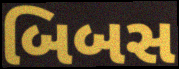
બિબસ